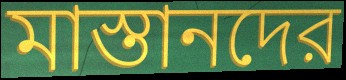
মাস্তানদের